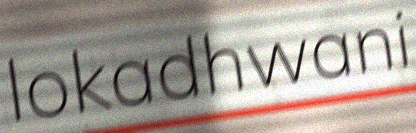
lokadhwani